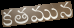
కతమున